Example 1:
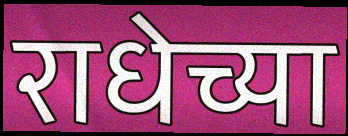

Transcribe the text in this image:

राधेच्या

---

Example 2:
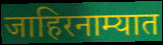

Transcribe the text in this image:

जाहिरनाम्यात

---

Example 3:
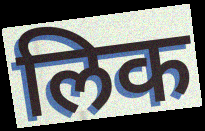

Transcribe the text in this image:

लिक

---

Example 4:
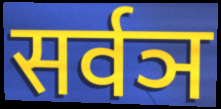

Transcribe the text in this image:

सर्वञ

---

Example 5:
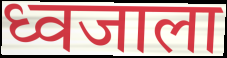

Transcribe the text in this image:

ध्वजाला